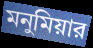
মনুমিয়ার